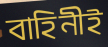
বাহিনীই